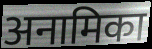
अनामिका